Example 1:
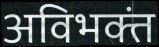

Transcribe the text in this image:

अविभक्तं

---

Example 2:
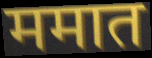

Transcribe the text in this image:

ममात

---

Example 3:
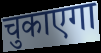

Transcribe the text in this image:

चुकाएगा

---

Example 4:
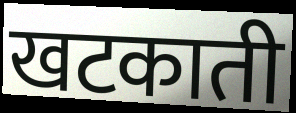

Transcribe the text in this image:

खटकाती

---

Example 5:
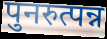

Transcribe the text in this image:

पुनरुत्पन्न